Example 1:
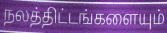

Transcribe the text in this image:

நலத்திட்டங்களையும்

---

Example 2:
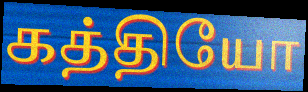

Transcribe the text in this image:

கத்தியோ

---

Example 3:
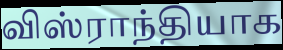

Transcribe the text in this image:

விஸ்ராந்தியாக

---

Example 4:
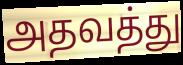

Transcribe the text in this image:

அதவத்து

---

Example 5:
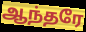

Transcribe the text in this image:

ஆந்தரே